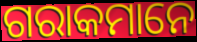
ଗରାକମାନେ